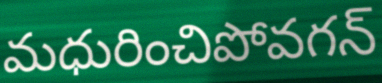
మధురించిపోవగన్